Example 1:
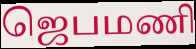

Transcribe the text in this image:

ஜெபமணி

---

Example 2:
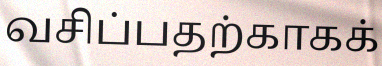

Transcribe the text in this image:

வசிப்பதற்காகக்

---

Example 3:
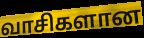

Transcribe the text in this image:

வாசிகளான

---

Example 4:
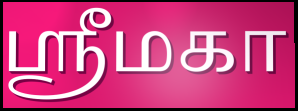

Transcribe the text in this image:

ஸ்ரீமகா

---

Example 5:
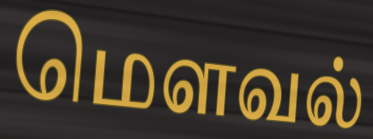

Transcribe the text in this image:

மௌவல்